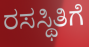
ರಸಸ್ಥಿತಿಗೆ